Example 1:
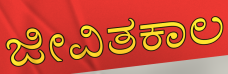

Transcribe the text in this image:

ಜೀವಿತಕಾಲ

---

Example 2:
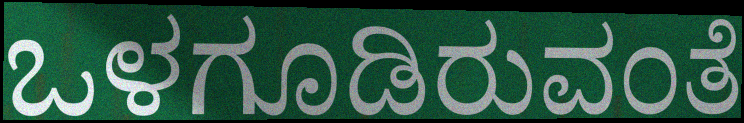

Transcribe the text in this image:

ಒಳಗೂಡಿರುವಂತೆ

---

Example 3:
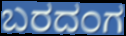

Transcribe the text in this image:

ಬರದಂಗ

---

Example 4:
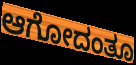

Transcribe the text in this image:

ಆಗೋದಂತೂ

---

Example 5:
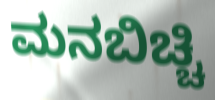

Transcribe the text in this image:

ಮನಬಿಚ್ಚಿ